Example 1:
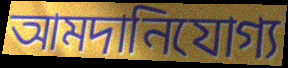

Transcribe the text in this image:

আমদানিযোগ্য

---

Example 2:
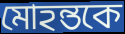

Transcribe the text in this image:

মোহন্তকে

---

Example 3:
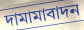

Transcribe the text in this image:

দামামাবাদন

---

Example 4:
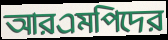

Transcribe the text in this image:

আরএমপিদের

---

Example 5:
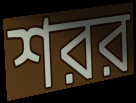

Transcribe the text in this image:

শরর